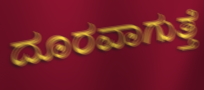
ದೂರವಾಗುತ್ತೆ